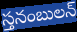
స్తనంబులన్